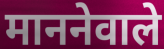
माननेवाले